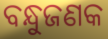
ବନ୍ଧୁଜଣକ